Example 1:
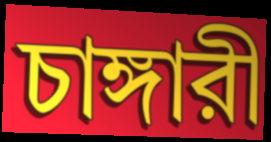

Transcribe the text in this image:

চাঙ্গারী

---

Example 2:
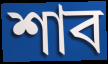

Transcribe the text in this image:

শাব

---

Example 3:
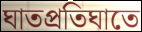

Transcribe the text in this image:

ঘাতপ্রতিঘাতে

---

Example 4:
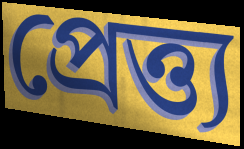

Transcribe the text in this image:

প্রেত্ত্য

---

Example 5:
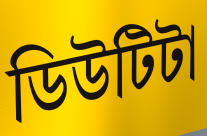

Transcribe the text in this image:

ডিউটিটা